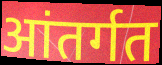
आंतर्गत